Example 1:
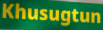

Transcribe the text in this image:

Khusugtun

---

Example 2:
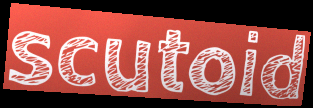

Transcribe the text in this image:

scutoid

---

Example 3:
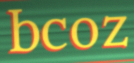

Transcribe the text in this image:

bcoz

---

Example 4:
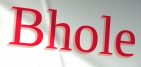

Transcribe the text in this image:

Bhole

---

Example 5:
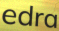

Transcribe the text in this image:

edra